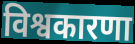
विश्वकारणा